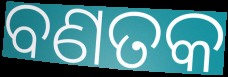
ବଣତକ